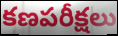
కణపరీక్షలు